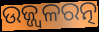
ଉଜ୍ଜ୍ୱଳରତ୍ନ